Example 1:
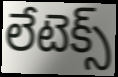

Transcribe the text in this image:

లేటెక్స్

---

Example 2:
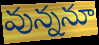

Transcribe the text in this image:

వున్ననూ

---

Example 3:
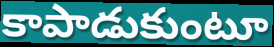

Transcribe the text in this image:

కాపాడుకుంటూ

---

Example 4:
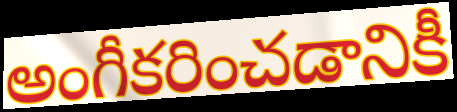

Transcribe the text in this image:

అంగీకరించడానికీ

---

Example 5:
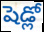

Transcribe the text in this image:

షెడ్లో